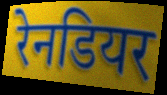
रेनडियर